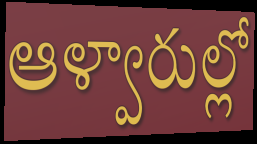
ఆళ్వారుల్లో